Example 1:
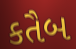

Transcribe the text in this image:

કતૈબ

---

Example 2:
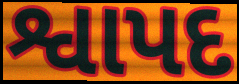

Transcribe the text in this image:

શ્વાપદ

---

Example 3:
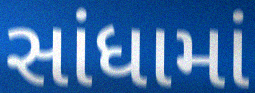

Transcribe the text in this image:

સાંધામાં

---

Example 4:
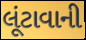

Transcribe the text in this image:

લૂંટાવાની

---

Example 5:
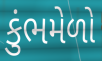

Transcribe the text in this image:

કુંભમેળો